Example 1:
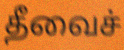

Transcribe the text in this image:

தீவைச்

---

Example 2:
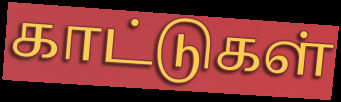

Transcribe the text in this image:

காட்டுகள்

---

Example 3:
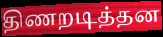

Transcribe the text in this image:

திணறடித்தன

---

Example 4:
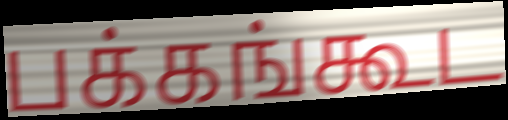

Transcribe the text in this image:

பக்கங்கூட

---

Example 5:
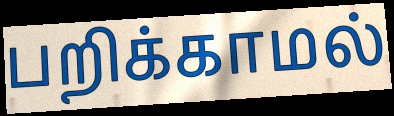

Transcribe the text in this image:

பறிக்காமல்